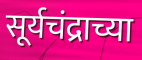
सूर्यचंद्राच्या